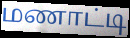
மணாட்டி